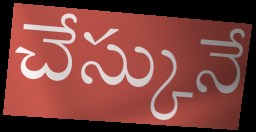
చేస్కునే